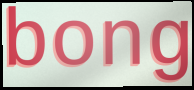
bong